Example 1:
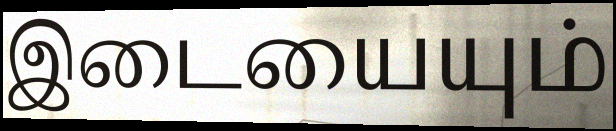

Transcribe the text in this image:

இடையையும்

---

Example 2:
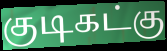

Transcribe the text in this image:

குடிகட்கு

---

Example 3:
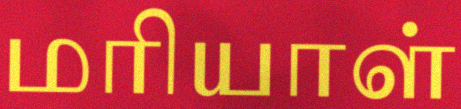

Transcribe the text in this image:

மரியாள்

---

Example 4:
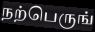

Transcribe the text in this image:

நற்பெருங்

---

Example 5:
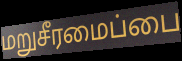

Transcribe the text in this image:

மறுசீரமைப்பை